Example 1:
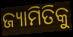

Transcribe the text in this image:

ଜ୍ୟାମିତିକୁ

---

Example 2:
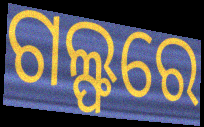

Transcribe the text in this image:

ଗଲ୍ଫରେ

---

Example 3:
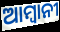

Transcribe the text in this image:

ଆମ୍ବାନୀ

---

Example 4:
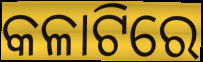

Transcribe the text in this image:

କଳାଟିରେ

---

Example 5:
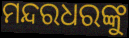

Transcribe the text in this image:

ମନ୍ଦରଧରଙ୍କୁ